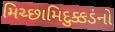
મિચ્છામિદુક્કડંનો